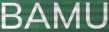
BAMU